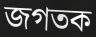
জগতক